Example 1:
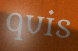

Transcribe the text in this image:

quis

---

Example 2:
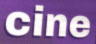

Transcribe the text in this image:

cine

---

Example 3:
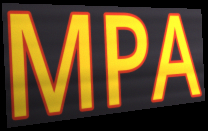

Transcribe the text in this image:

MPA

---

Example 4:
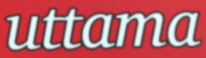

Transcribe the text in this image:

uttama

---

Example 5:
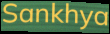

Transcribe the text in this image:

Sankhya